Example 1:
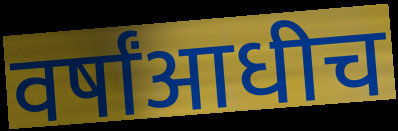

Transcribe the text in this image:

वर्षांआधीच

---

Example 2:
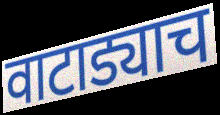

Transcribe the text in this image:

वाटाड्याच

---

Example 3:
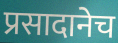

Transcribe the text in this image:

प्रसादानेच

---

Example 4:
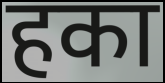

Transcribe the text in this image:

हका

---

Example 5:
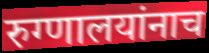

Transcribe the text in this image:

रुग्णालयांनाच